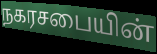
நகரசபையின்